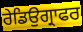
ਰੇਡਿਉਗ੍ਰਾਫਰ